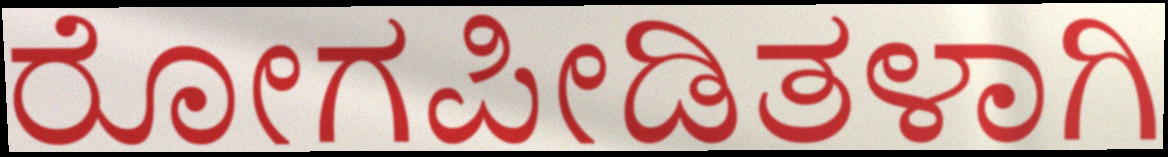
ರೋಗಪೀಡಿತಳಾಗಿ